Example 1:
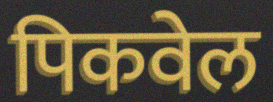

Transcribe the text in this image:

पिकवेल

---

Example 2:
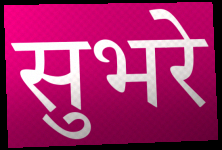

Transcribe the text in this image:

सुभरे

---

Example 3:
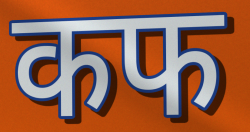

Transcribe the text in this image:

कफ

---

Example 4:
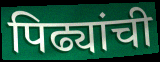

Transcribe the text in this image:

पिढ्यांची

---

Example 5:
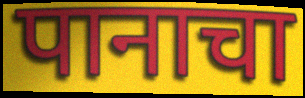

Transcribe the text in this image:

पानाचा